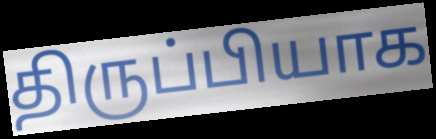
திருப்பியாக